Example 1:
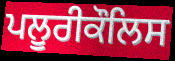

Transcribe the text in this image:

ਪਲੂਰੀਕੌਲਿਸ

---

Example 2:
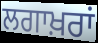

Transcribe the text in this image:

ਲਗਾਖ਼ਰਾਂ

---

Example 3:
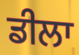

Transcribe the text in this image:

ਡੀਲਾ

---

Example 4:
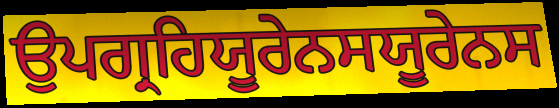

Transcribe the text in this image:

ਉਪਗ੍ਰਹਿਯੂਰੇਨਸਯੂਰੇਨਸ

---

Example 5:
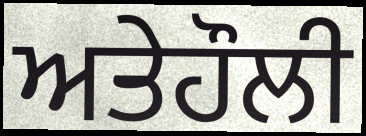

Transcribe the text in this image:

ਅਤੇਹੌਲੀ